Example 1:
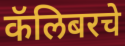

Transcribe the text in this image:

कॅलिबरचे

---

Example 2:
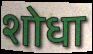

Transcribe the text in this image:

शोधा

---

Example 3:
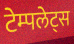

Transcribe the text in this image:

टेम्पलेट्स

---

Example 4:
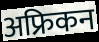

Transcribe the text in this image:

अफ्रिकन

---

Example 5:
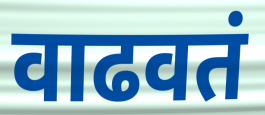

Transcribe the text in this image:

वाढवतं